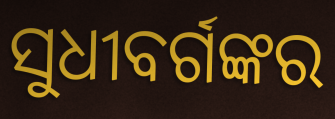
ସୁଧୀବର୍ଗଙ୍କର